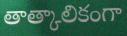
తాత్కాలికంగా